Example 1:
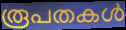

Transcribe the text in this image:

രൂപതകൾ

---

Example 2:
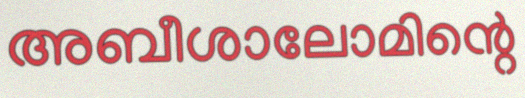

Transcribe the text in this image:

അബീശാലോമിന്റെ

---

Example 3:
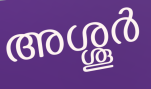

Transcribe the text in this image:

അശ്ശൂർ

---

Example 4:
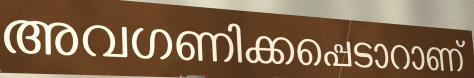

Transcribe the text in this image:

അവഗണിക്കപ്പെടാറാണ്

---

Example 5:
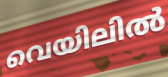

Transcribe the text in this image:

വെയിലിൽ